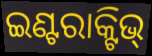
ଇଣ୍ଟରାକ୍ଟିଭ୍